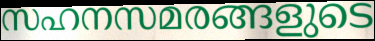
സഹനസമരങ്ങളുടെ